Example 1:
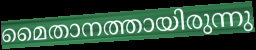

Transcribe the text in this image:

മൈതാനത്തായിരുന്നു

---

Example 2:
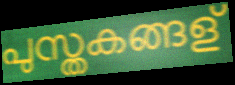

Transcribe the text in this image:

പുസ്തകങ്ങള്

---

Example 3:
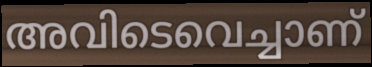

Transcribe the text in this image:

അവിടെവെച്ചാണ്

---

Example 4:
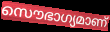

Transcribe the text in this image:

സൌഭാഗ്യമാണ്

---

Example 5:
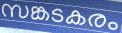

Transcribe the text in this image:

സങ്കടകരം